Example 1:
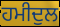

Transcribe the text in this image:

ਹਮੀਦੁਲ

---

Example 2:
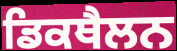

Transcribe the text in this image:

ਡਿਕਥੈਲਨ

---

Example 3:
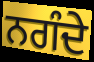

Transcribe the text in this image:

ਨਗੰਦੇ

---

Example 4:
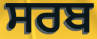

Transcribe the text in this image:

ਸਰਬ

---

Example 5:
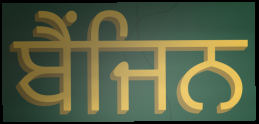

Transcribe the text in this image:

ਬੈਂਜਿਨ